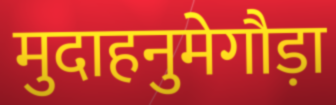
मुदाहनुमेगौड़ा